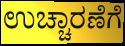
ಉಚ್ಚಾರಣೆಗೆ